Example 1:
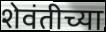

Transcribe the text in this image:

शेवंतीच्या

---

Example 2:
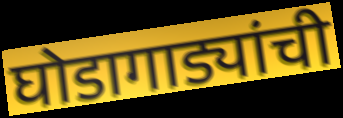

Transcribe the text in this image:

घोडागाड्यांची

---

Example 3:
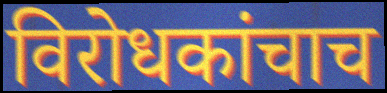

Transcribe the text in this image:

विरोधकांचाच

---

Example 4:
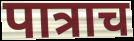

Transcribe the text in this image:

पात्राच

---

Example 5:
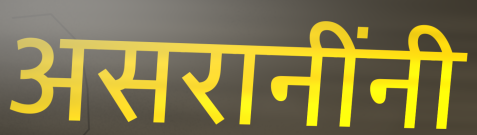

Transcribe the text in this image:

असरानींनी